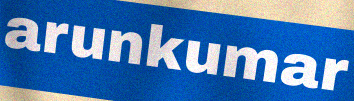
arunkumar